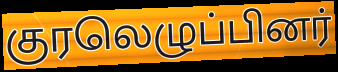
குரலெழுப்பினர்